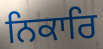
ਨਿਕਾਰਿ